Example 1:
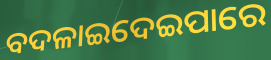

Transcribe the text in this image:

ବଦଳାଇଦେଇପାରେ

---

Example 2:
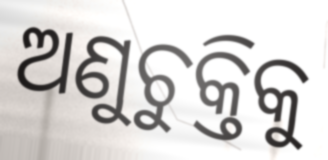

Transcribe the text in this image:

ଅଣୁଚୁକ୍ତିକୁ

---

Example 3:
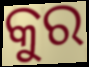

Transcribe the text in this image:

କୁର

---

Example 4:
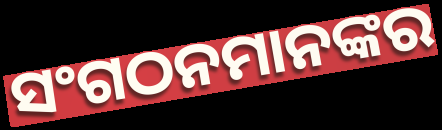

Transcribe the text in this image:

ସଂଗଠନମାନଙ୍କର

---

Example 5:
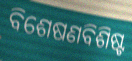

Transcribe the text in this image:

ବିଶେଷଣବିଶିଷ୍ଟ